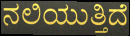
ನಲಿಯುತ್ತಿದೆ